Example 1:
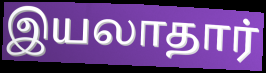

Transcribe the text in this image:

இயலாதார்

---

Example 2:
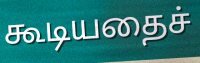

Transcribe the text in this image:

கூடியதைச்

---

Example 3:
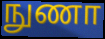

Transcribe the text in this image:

நுணா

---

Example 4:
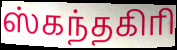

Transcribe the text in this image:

ஸ்கந்தகிரி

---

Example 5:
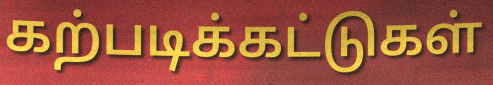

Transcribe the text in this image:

கற்படிக்கட்டுகள்